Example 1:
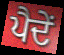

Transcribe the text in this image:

ਪੈਦੇਂ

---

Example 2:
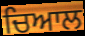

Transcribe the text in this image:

ਚਿਆਲ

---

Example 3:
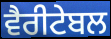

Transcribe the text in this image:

ਵੈਰੀਟੇਬਲ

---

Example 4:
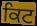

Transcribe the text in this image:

ਕਿਟ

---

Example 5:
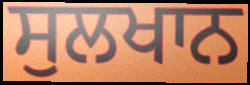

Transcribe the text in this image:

ਸੁਲਖਾਨ